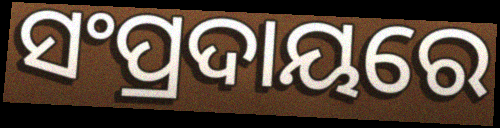
ସଂପ୍ରଦାୟରେ